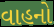
વાહનો